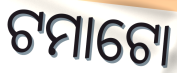
ଟମାଟୋ